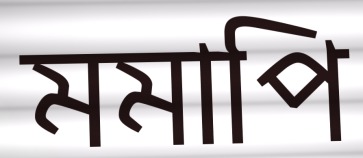
মমাপি